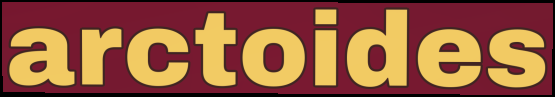
arctoides